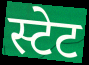
स्टेट